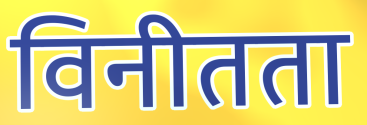
विनीतता